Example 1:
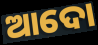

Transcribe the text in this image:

ଆଦୋ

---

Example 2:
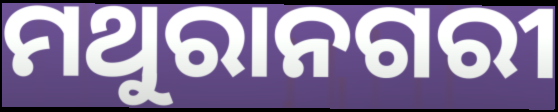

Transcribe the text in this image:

ମଥୁରାନଗରୀ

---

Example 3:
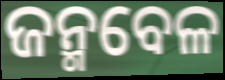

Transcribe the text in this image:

ଜନ୍ମବେଳ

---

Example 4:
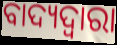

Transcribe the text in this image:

ବାଦ୍ୟଦ୍ୱାରା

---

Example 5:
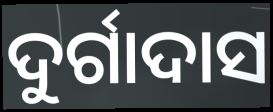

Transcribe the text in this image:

ଦୁର୍ଗାଦାସ